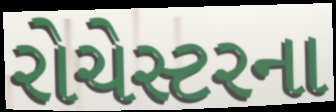
રોચેસ્ટરના